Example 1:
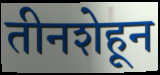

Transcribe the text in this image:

तीनशेहून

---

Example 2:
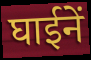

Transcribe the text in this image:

घाईनें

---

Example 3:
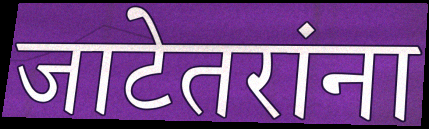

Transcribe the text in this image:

जाटेतरांना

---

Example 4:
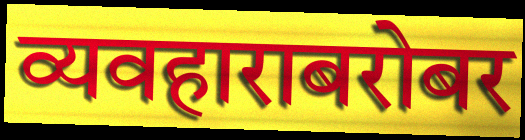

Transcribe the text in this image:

व्यवहाराबरोबर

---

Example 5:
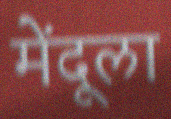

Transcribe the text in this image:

मेंदूला